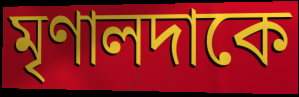
মৃণালদাকে